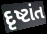
દૃષ્ટાંત